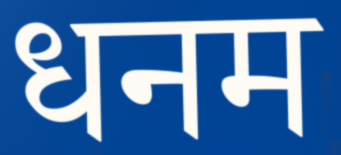
धनम